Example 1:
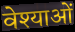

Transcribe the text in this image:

वेश्याओं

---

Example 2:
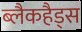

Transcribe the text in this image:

ब्लैकहैड्स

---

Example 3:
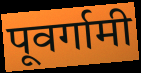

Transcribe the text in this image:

पूवर्गामी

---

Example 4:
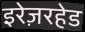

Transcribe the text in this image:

इरेज़रहेड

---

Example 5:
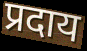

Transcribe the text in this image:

प्रदाय